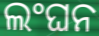
ଲଂଘନ